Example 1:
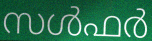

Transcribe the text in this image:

സൾഫർ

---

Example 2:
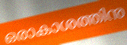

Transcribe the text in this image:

ഒരാകാശത്തിനു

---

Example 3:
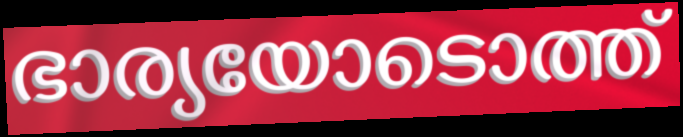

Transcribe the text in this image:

ഭാര്യയോടൊത്ത്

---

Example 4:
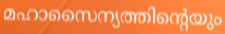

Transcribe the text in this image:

മഹാസൈന്യത്തിന്റെയും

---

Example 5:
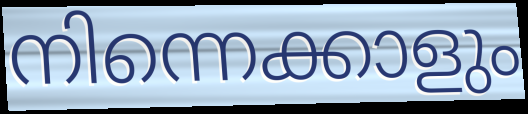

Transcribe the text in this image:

നിന്നെക്കാളും